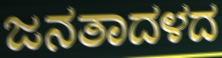
ಜನತಾದಳದ